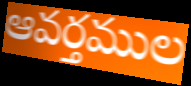
ఆవర్తముల